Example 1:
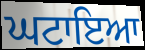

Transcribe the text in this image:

ਘਟਾਇਆ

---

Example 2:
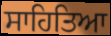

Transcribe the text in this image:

ਸਾਹਿਤਿਆ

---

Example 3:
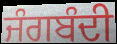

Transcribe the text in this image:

ਜੰਗਬੰਦੀ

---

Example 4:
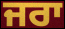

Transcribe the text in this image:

ਜਰਾ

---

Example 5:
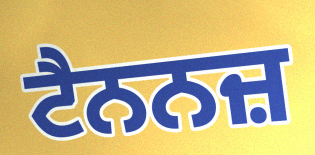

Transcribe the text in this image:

ਟੈਨਨਜ਼